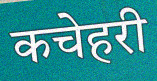
कचेहरी